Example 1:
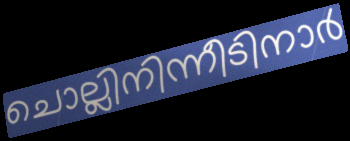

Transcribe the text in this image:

ചൊല്ലിനിന്നീടിനാർ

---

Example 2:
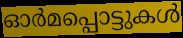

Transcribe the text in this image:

ഓർമപ്പൊട്ടുകൾ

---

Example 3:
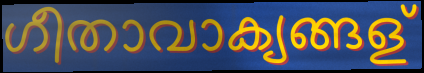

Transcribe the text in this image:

ഗീതാവാക്യങ്ങള്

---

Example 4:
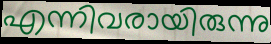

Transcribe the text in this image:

എന്നിവരായിരുന്നു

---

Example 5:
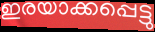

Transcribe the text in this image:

ഇരയാക്കപ്പെട്ടു